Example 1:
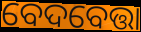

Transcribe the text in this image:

ବେଦବେତ୍ତା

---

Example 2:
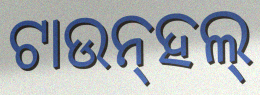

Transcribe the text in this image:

ଟାଉନ୍‌ହଲ୍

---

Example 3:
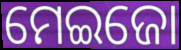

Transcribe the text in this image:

ମେଇଜୋ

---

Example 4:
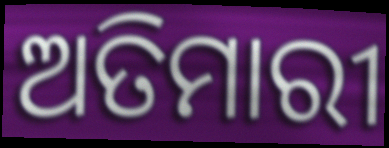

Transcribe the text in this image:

ଅତିମାରୀ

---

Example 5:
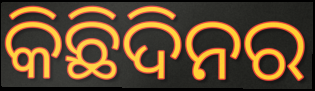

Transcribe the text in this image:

କିଛିଦିନର